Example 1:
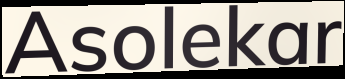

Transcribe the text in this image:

Asolekar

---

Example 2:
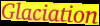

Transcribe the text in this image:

Glaciation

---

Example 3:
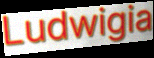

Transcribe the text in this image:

Ludwigia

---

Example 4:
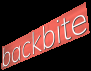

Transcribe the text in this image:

backbite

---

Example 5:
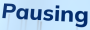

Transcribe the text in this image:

Pausing